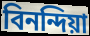
বিনন্দিয়া